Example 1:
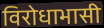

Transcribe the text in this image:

विरोधाभासी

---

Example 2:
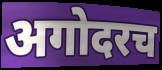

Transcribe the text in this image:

अगोदरच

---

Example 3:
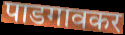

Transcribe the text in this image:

पाडगावकर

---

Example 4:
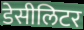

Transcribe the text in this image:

डेसीलिटर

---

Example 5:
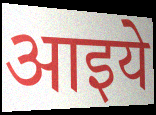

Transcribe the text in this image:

आइये